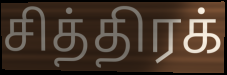
சித்திரக்